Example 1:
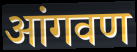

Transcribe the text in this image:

आंगवण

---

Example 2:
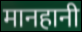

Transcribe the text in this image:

मानहानी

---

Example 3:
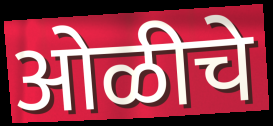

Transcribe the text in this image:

ओळीचे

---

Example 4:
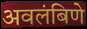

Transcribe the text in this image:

अवलंबिणे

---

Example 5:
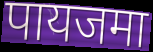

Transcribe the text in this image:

पायजमा